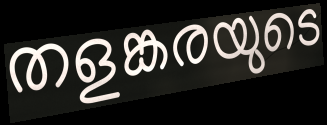
തളങ്കരയുടെ